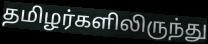
தமிழர்களிலிருந்து